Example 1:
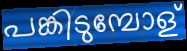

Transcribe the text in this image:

പങ്കിടുമ്പോള്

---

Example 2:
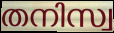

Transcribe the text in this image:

തനിസ്വ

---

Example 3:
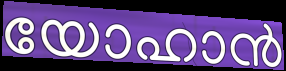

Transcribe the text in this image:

യോഹാൻ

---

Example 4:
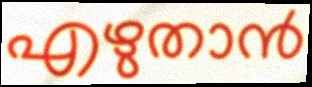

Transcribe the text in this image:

എഴുതാൻ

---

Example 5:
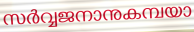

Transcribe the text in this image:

സർവ്വജനാനുകമ്പയാ